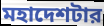
মহাদেশটার